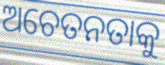
ଅଚେତନତାକୁ